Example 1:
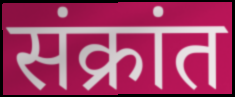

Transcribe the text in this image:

संक्रांत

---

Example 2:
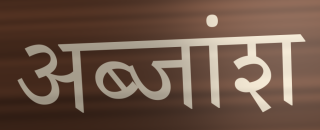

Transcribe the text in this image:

अब्जांश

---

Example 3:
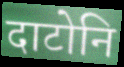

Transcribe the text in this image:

दाटोनि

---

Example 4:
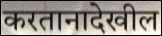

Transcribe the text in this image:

करतानादेखील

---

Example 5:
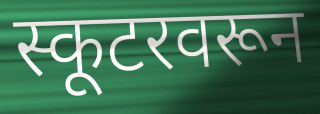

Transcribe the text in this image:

स्कूटरवरून